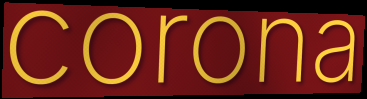
corona